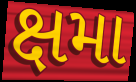
ક્ષમા